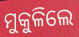
ମୁକୁଳିଲେ